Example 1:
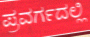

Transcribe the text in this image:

ಪ್ರವರ್ಗದಲ್ಲಿ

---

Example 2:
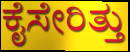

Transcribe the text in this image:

ಕೈಸೇರಿತ್ತು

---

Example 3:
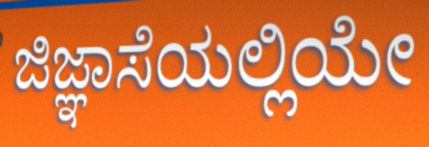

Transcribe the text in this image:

ಜಿಜ್ಞಾಸೆಯಲ್ಲಿಯೇ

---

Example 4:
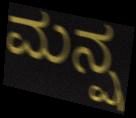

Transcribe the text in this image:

ಮನ್ಷ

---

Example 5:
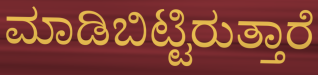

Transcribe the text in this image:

ಮಾಡಿಬಿಟ್ಟಿರುತ್ತಾರೆ